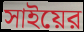
সাইয়ের